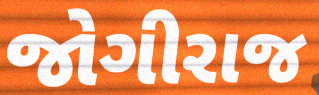
જોગીરાજ